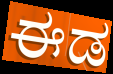
ಈಡ